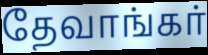
தேவாங்கர்